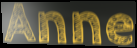
Anne